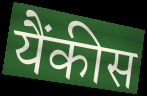
यैंकीस